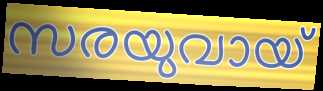
സരയുവായ്